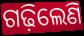
ଗଢ଼ିଲେଣି